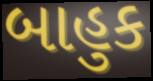
બાહુક